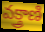
వక్త్రాణి